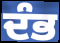
ਦੰਭ